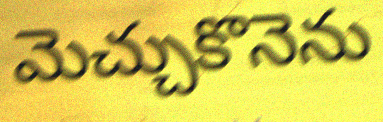
మెచ్చుకొనెను